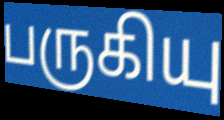
பருகியு